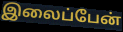
இலைப்பேன்